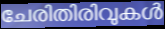
ചേരിതിരിവുകൾ